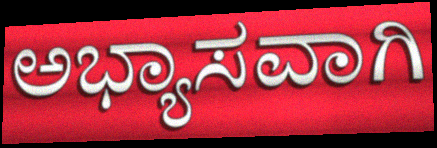
ಅಭ್ಯಾಸವಾಗಿ